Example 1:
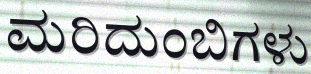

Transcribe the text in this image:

ಮರಿದುಂಬಿಗಳು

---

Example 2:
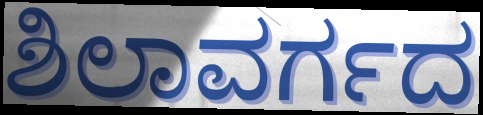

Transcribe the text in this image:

ಶಿಲಾವರ್ಗದ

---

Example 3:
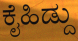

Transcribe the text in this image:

ಕೈಹಿಡ್ದು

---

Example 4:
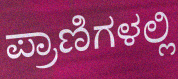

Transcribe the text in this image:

ಪ್ರಾಣಿಗಳಲ್ಲಿ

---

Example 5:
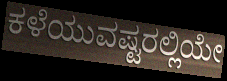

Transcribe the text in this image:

ಕಳೆಯುವಷ್ಟರಲ್ಲಿಯೇ